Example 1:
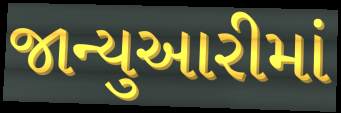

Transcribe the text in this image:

જાન્યુઆરીમાં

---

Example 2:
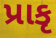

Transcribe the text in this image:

પ્રાકૃ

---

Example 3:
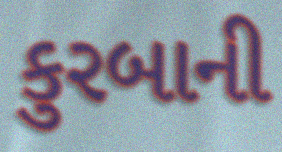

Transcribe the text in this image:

કુરબાની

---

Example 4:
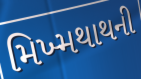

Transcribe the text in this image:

મિખ્મથાથની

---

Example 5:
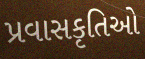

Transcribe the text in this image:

પ્રવાસકૃતિઓ